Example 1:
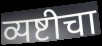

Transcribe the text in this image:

व्यष्टीचा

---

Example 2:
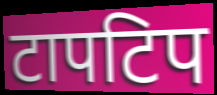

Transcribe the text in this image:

टापटिप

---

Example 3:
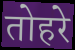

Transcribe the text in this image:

तोहरे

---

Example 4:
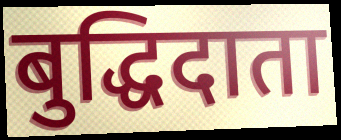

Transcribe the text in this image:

बुद्धिदाता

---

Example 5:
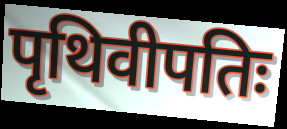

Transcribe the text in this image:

पृथिवीपतिः